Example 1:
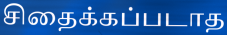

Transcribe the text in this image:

சிதைக்கப்படாத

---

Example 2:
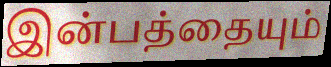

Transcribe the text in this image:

இன்பத்தையும்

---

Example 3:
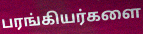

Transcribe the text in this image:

பரங்கியர்களை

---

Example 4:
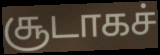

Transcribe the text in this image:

சூடாகச்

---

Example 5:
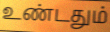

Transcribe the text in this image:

உண்டதும்